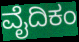
ವೈದಿಕಂ